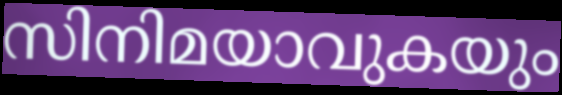
സിനിമയാവുകയും